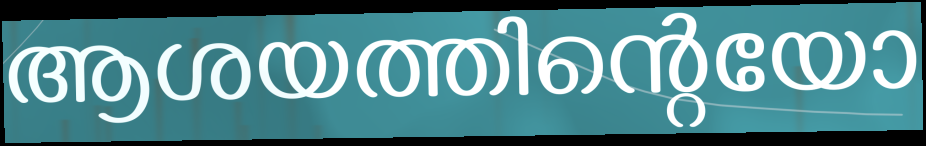
ആശയത്തിന്റെയോ